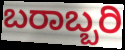
ಬರಾಬ್ಬರಿ